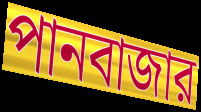
পানবাজার